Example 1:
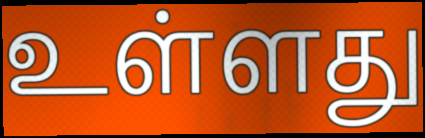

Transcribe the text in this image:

உள்ளது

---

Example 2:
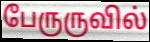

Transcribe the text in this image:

பேருருவில்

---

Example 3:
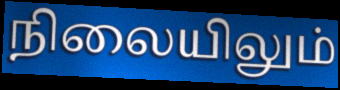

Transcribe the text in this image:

நிலையிலும்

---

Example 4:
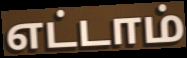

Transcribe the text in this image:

எட்டாம்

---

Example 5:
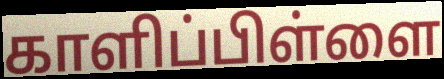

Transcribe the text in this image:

காளிப்பிள்ளை